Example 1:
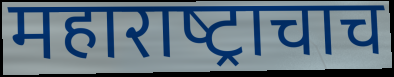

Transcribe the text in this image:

महाराष्ट्राचाच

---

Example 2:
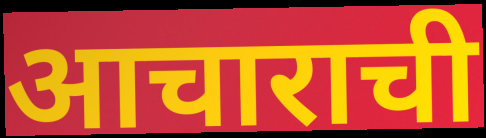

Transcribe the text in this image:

आचाराची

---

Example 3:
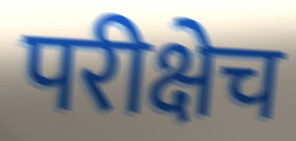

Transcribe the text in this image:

परीक्षेच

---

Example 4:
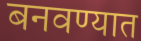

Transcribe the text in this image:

बनवण्यात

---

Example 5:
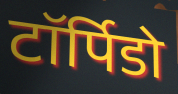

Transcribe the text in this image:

टॉर्पिडो